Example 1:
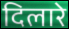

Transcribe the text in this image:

दिलारे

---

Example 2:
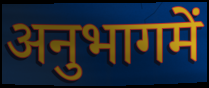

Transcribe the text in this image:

अनुभागमें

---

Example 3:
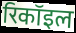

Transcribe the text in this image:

रिकॉइल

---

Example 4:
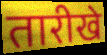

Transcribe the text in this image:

तारीखे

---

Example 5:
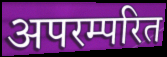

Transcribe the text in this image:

अपरम्परित